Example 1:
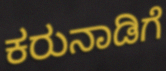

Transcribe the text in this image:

ಕರುನಾಡಿಗೆ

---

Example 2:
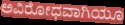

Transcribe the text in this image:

ಅವಿರೋಧವಾಗಿಯೂ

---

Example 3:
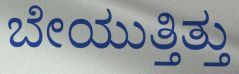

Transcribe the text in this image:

ಬೇಯುತ್ತಿತ್ತು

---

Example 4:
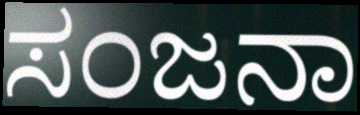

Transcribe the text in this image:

ಸಂಜನಾ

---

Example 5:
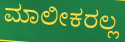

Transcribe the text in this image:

ಮಾಲೀಕರಲ್ಲ